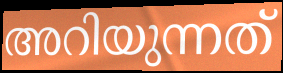
അറിയുന്നത്